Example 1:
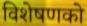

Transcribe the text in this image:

विशेषणको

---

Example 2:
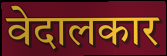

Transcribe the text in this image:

वेदालकार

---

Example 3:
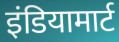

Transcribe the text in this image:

इंडियामार्ट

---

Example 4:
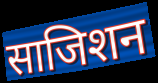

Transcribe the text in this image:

साजिशन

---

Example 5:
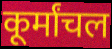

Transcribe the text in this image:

कूर्मांचल